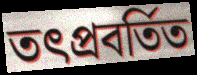
তৎপ্রবর্তিত